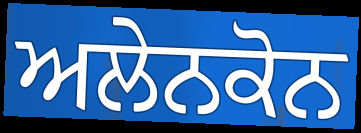
ਅਲੇਨਕੋਨ